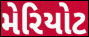
મેરિયોટ